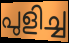
പുളിച്ച